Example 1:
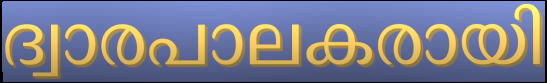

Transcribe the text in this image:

ദ്വാരപാലകരായി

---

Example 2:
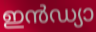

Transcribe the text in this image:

ഇൻഡ്യാ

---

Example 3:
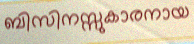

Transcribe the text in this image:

ബിസിനസ്സുകാരനായ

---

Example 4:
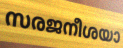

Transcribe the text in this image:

സരജനീശയാ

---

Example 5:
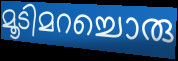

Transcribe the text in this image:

മൂടിമറച്ചൊരു